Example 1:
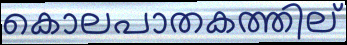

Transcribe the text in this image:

കൊലപാതകത്തില്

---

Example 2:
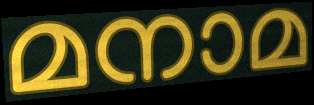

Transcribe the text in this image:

മനാമ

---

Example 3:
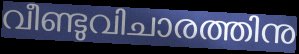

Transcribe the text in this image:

വീണ്ടുവിചാരത്തിനു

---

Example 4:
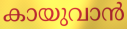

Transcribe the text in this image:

കായുവാൻ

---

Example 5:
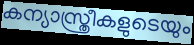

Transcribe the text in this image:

കന്യാസ്ത്രീകളുടെയും